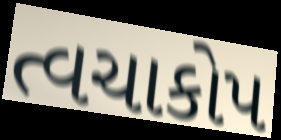
ત્વચાકોપ